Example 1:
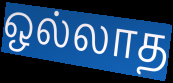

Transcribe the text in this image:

ஒல்லாத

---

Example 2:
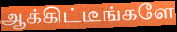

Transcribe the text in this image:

ஆக்கிட்டீங்களே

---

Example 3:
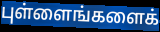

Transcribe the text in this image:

புள்ளைங்களைக்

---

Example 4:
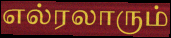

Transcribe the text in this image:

எல்ரலாரும்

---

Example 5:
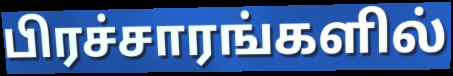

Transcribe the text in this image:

பிரச்சாரங்களில்